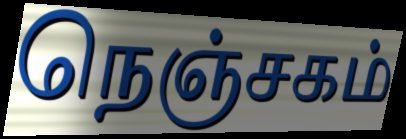
நெஞ்சகம்